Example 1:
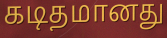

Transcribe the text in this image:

கடிதமானது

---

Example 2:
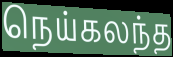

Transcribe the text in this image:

நெய்கலந்த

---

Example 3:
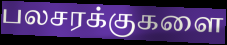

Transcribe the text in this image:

பலசரக்குகளை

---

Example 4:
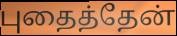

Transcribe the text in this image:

புதைத்தேன்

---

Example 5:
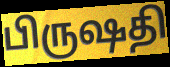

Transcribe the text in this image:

பிருஷதி